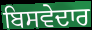
ਬਿਸਵੇਦਾਰ